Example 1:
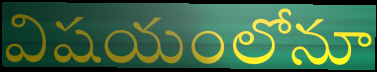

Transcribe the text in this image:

విషయంలోనూ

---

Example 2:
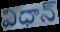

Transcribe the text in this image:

విధాన్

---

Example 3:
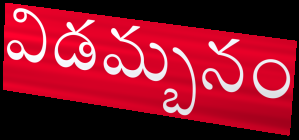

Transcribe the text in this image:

విడమ్బనం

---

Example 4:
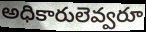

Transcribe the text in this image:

అధికారులెవ్వరూ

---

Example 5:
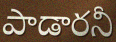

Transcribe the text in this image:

పాడారనీ